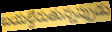
బయల్దేరుతున్నప్పుడు